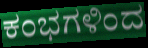
ಕಂಭಗಳಿಂದ